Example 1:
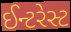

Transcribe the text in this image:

ઈન્ટરેસ્ટ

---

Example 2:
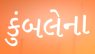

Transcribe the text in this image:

કુંબલેના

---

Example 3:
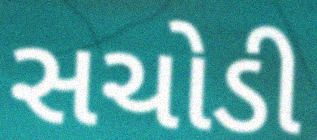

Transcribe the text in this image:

સચોડી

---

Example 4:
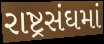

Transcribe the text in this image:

રાષ્ટ્રસંઘમાં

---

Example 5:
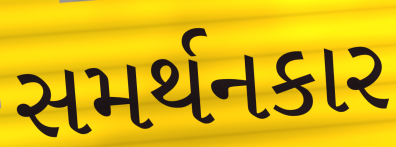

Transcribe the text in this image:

સમર્થનકાર